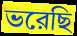
ভরেছি